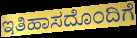
ಇತಿಹಾಸದೊಂದಿಗೆ